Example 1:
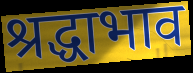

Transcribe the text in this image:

श्रद्धाभाव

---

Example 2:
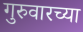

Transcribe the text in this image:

गुरुवारच्या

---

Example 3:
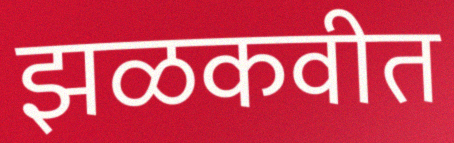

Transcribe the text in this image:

झळकवीत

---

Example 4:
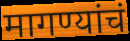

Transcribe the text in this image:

मागण्यांचं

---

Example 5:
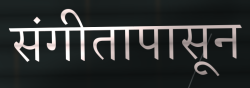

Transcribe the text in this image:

संगीतापासून